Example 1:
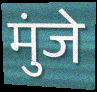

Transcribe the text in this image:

मुंजे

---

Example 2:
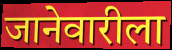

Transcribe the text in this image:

जानेवारीला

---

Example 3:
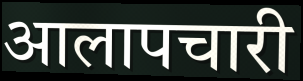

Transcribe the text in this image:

आलापचारी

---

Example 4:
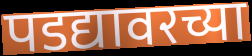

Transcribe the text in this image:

पडद्यावरच्या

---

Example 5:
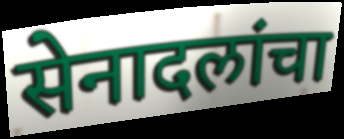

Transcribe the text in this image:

सेनादलांचा